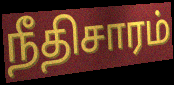
நீதிசாரம்